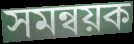
সমন্বয়ক